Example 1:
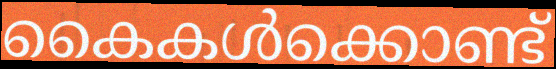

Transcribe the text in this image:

കൈകൾക്കൊണ്ട്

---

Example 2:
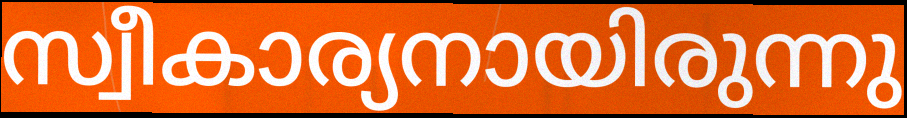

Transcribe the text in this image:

സ്വീകാര്യനായിരുന്നു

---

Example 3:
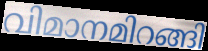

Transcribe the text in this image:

വിമാനമിറങ്ങി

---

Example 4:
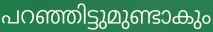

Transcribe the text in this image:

പറഞ്ഞിട്ടുമുണ്ടാകും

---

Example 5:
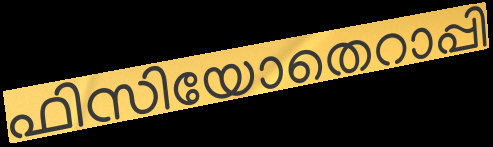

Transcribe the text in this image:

ഫിസിയോതെറാപ്പി